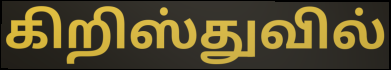
கிறிஸ்துவில்